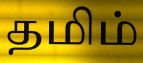
தமிம்